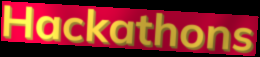
Hackathons